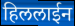
हिललाईन